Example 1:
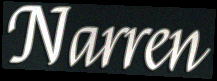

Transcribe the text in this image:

Narren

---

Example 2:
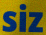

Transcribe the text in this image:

siz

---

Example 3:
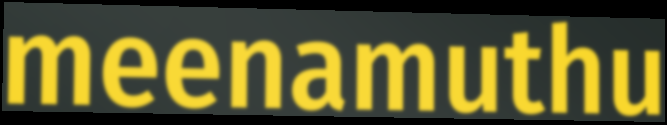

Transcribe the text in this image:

meenamuthu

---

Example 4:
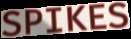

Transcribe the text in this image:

SPIKES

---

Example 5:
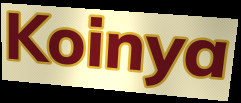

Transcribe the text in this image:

Koinya